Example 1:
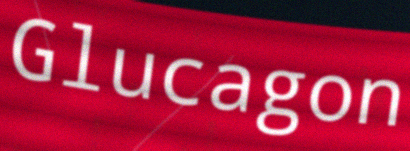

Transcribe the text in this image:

Glucagon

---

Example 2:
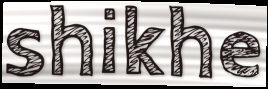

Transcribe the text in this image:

shikhe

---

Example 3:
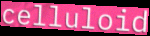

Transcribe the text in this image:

celluloid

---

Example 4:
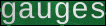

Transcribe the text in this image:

gauges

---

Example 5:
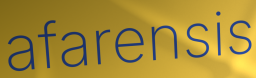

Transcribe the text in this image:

afarensis